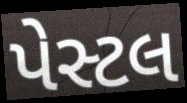
પેસ્ટલ